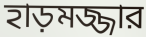
হাড়মজ্জার